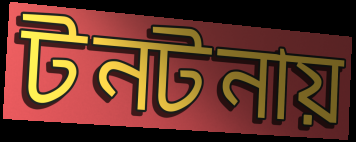
টনটনায়